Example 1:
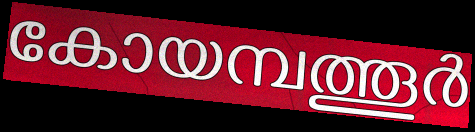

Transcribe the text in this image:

കോയമ്പത്തൂർ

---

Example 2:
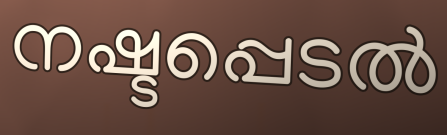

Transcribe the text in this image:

നഷ്ടപ്പെടൽ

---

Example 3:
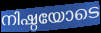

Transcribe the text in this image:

നിഷ്ഠയോടെ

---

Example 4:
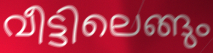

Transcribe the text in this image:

വീട്ടിലെങ്ങും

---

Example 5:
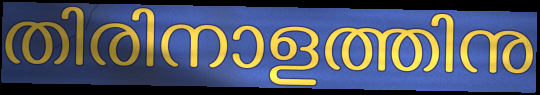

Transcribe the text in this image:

തിരിനാളത്തിനു